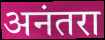
अनंतरा